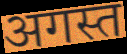
अगस्त